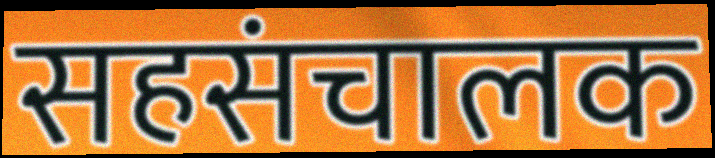
सहसंचालक